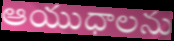
ఆయుధాలను